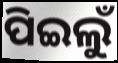
ପିଇଲୁଁ